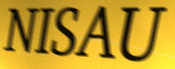
NISAU